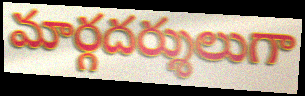
మార్గదర్శులుగా